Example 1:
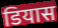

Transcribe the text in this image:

डियास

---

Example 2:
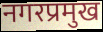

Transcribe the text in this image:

नगरप्रमुख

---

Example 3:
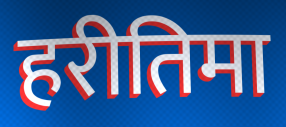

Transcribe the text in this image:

हरीतिमा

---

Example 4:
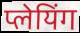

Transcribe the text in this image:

प्लेयिंग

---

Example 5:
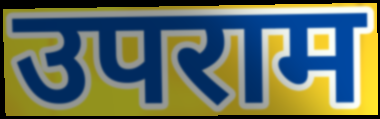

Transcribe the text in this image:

उपराम